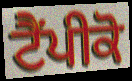
ਟੈਂਪੀਕੋ